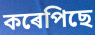
কৰেপিছে